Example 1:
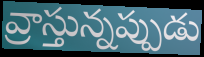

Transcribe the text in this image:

వ్రాస్తున్నప్పుడు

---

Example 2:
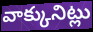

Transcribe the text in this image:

వాక్కునిట్లు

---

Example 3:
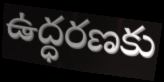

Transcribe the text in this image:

ఉద్ధరణకు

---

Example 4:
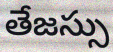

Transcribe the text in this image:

తేజస్సు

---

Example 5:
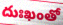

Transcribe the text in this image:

దుఃఖంతో